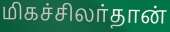
மிகச்சிலர்தான்